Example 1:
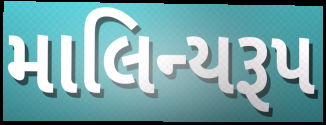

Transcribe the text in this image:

માલિન્યરૂપ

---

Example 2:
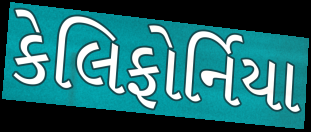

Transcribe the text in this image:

કેલિફોર્નિયા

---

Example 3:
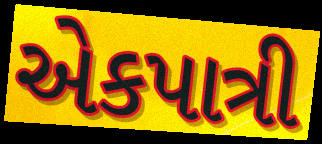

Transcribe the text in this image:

એકપાત્રી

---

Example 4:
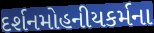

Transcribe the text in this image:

દર્શનમોહનીયકર્મના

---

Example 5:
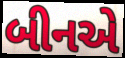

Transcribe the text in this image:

બીનએ